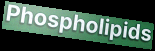
Phospholipids